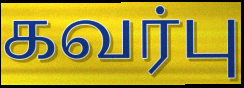
கவர்பு